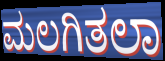
ಮಲಗಿತಲಾ